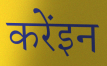
करेंइन